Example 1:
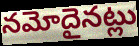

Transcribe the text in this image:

నమోదైనట్లు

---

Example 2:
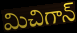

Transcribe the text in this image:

మిచిగాన్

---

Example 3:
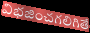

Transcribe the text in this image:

విభజించగలిగితే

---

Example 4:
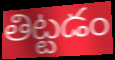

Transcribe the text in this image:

తిట్టడం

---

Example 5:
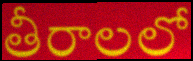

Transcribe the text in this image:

తీరాలలో